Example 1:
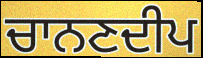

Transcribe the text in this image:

ਚਾਨਣਦੀਪ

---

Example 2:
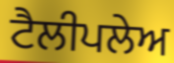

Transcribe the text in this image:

ਟੈਲੀਪਲੇਅ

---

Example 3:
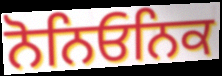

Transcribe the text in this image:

ਨੋਨਿਓਨਿਕ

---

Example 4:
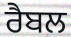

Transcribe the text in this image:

ਰੈਬਲ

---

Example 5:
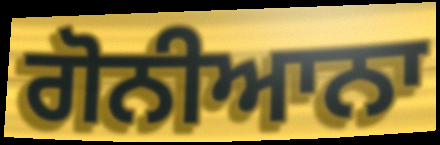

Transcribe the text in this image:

ਗੋਨੀਆਨਾ